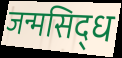
जन्मसिद्ध